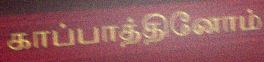
காப்பாத்தினோம்